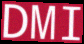
DMI